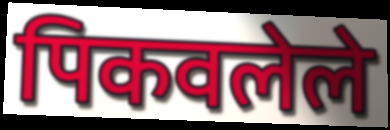
पिकवलेले